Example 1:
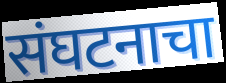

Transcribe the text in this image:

संघटनाचा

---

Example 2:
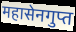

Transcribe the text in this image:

महासेनगुप्त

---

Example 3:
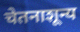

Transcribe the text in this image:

चेतनाशून्य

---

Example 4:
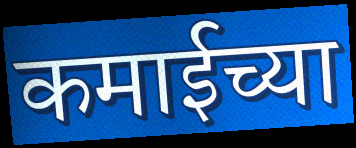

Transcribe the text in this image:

कमाईच्या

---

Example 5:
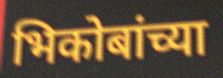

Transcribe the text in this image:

भिकोबांच्या